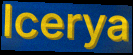
Icerya